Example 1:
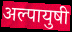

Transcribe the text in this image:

अल्पायुषी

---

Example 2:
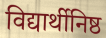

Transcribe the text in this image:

विद्यार्थीनिष्ठ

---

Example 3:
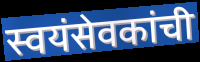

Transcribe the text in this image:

स्वयंसेवकांची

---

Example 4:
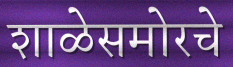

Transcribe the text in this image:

शाळेसमोरचे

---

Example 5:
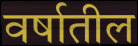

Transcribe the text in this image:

वर्षातील